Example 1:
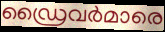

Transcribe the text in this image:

ഡ്രൈവർമാരെ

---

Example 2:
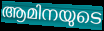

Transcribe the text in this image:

ആമിനയുടെ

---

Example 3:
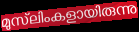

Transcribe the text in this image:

മുസ്‌ലിംകളായിരുന്നു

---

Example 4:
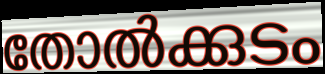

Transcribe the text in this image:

തോൽക്കുടം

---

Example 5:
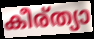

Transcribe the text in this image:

കീര്ത്യാ